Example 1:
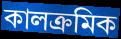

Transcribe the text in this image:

কালক্ৰমিক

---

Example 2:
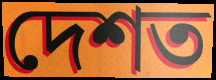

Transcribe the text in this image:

দেশত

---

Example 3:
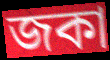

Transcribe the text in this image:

জকা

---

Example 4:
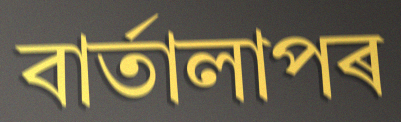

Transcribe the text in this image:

বাৰ্তালাপৰ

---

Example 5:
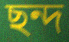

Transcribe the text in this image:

ছন্দ